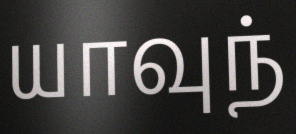
யாவுந்